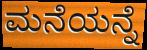
ಮನೆಯನ್ನೆ